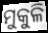
ମୁକୁଳି